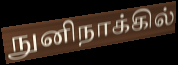
நுனிநாக்கில்